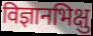
विज्ञानभिक्षु